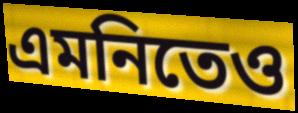
এমনিতেও